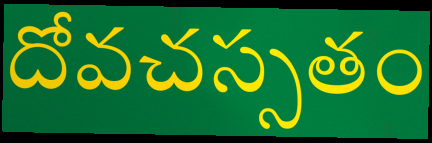
దోవచస్సతం